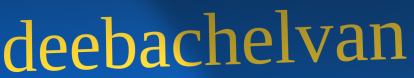
deebachelvan